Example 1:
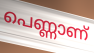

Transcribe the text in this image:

പെണ്ണാണ്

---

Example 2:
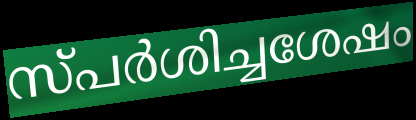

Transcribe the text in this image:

സ്പർശിച്ചശേഷം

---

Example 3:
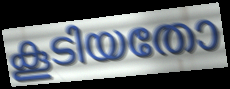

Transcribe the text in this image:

കൂടിയതോ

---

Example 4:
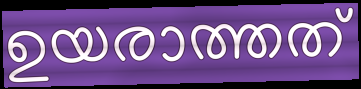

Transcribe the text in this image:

ഉയരാത്തത്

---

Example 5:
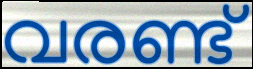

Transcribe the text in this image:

വരണ്ട്